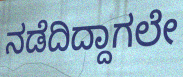
ನಡೆದಿದ್ದಾಗಲೇ